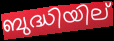
ബുദ്ധിയില്